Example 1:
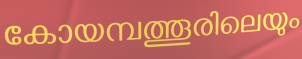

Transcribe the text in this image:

കോയമ്പത്തൂരിലെയും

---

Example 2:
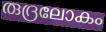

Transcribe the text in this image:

രുദ്രലോകം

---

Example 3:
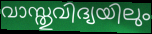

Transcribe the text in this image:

വാസ്തുവിദ്യയിലും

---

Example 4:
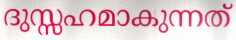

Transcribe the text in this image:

ദുസ്സഹമാകുന്നത്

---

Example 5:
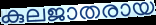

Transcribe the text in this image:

കുലജാതരായ